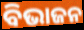
ବିଭାଜନ